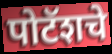
पोटॅशचे